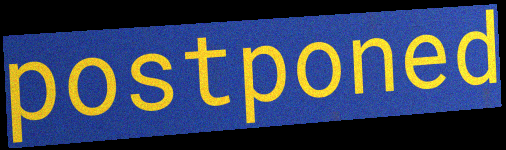
postponed